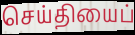
செய்தியைப்